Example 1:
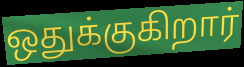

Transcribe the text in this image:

ஒதுக்குகிறார்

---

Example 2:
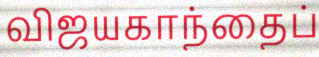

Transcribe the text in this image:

விஜயகாந்தைப்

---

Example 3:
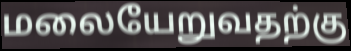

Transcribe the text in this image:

மலையேறுவதற்கு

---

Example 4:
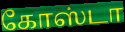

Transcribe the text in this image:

கோஸ்டா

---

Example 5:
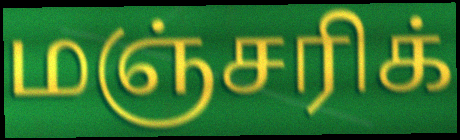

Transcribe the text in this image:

மஞ்சரிக்